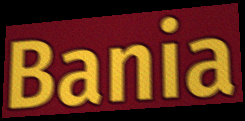
Bania